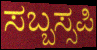
ಸಬ್ಬಸ್ಸಪಿ